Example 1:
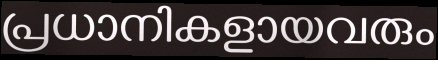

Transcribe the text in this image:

പ്രധാനികളായവരും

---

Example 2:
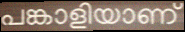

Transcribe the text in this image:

പങ്കാളിയാണ്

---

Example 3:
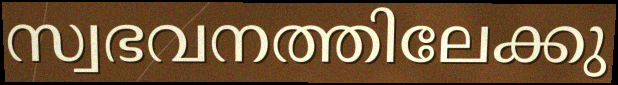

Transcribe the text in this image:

സ്വഭവനത്തിലേക്കു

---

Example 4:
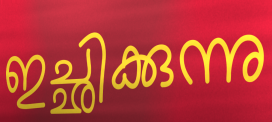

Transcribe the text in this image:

ഇച്ഛിക്കുന്നു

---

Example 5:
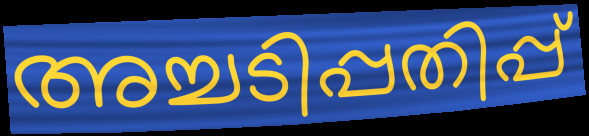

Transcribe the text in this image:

അച്ചടിപ്പതിപ്പ്